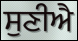
ਸੁਣੀਐ